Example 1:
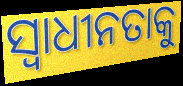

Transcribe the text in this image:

ସ୍ବାଧୀନତାକୁ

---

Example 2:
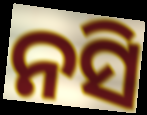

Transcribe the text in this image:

ନସି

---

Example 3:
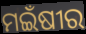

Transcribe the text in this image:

ମଇଁଷୀର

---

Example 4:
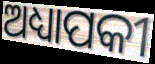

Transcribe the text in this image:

ଅଧ୍ୟାପକୀ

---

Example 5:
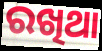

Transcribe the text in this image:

ରଖିଥା